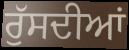
ਰੁੱਸਦੀਆਂ